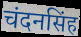
चंदनसिंह